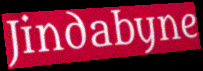
Jindabyne